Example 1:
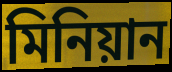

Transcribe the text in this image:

মিনিয়ান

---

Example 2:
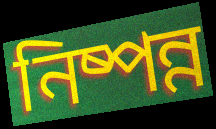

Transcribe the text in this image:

নিষ্পন্ন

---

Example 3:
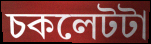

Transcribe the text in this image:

চকলেটটা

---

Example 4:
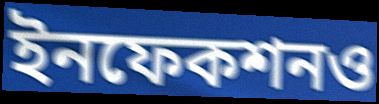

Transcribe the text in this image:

ইনফেকশনও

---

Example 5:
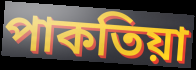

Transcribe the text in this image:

পাকতিয়া